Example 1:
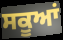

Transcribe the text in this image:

ਸਕੂਆਂ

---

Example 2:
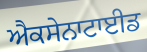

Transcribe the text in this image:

ਐਕਸੇਨਾਟਾਈਡ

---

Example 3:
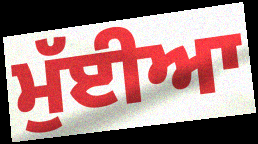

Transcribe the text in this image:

ਮੁੱਈਆ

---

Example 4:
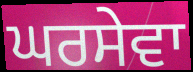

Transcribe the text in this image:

ਘਰਸੇਵਾ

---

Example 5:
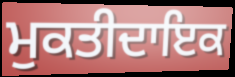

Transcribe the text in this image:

ਮੁਕਤੀਦਾਇਕ